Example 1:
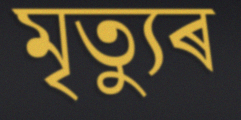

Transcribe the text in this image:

মৃত্যুৰ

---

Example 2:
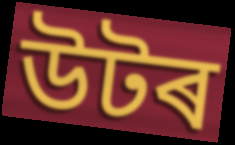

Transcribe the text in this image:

উটৰ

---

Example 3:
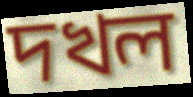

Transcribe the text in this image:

দখল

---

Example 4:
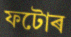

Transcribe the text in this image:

ফটোৰ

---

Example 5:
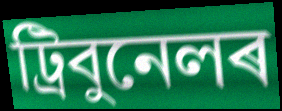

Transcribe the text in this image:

ট্ৰিবুনেলৰ